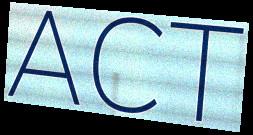
ACT